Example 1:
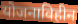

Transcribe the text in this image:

योजनाविहीन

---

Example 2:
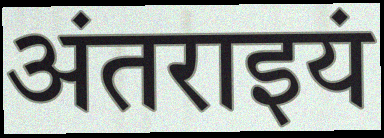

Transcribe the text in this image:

अंतराइयं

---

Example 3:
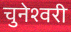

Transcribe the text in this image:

चुनेश्वरी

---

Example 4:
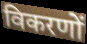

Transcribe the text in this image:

विकरणों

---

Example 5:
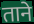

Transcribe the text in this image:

ताने